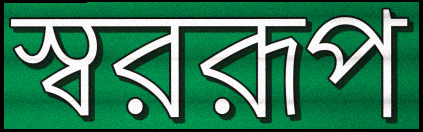
স্বররূপ